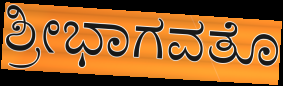
ಶ್ರೀಭಾಗವತೊ